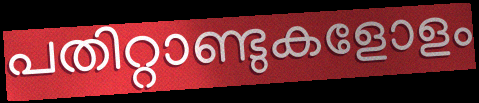
പതിറ്റാണ്ടുകളോളം